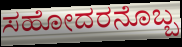
ಸಹೋದರನೊಬ್ಬ